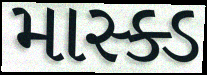
માસ્ક્ડ